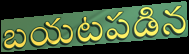
బయటపడిన